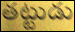
తట్టుడు